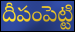
దీపంపెట్టి